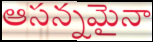
ఆసన్నమైనా